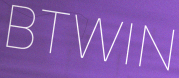
BTWIN